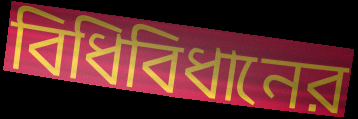
বিধিবিধানের